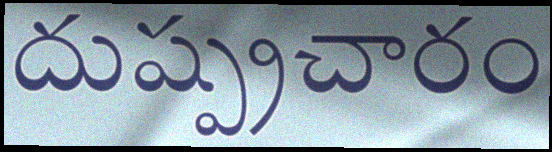
దుష్ప్రచారం